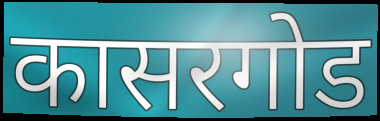
कासरगोड